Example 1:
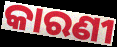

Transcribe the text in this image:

କାରଣୀ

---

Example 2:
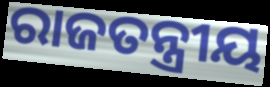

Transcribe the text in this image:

ରାଜତନ୍ତ୍ରୀୟ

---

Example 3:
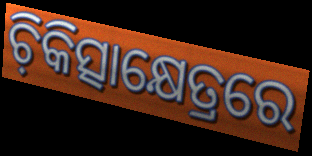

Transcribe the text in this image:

ଚ଼ିକିତ୍ସାକ୍ଷେତ୍ରରେ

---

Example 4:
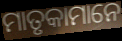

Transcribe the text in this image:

ମାତୃକାମାନେ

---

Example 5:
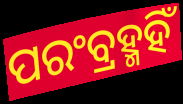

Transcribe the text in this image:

ପରଂବ୍ରହ୍ମହିଁ